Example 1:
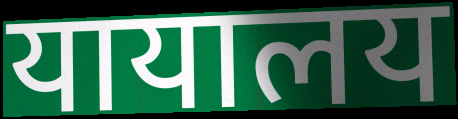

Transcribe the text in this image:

यायालय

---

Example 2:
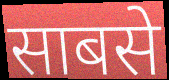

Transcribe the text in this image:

साबसे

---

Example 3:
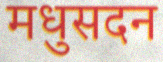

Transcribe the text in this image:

मधुसदन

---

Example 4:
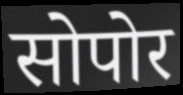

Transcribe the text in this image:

सोपोर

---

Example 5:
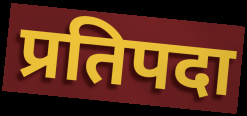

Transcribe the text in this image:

प्रतिपदा